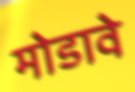
मोडावे